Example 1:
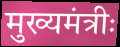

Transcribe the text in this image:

मुख्यमंत्रीः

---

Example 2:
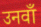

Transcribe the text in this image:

उनवाँ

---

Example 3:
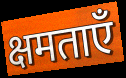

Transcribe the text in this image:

क्षमताएँ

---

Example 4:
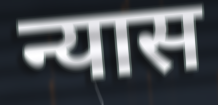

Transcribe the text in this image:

न्यास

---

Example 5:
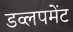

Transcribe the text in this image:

डव्लपमेंट